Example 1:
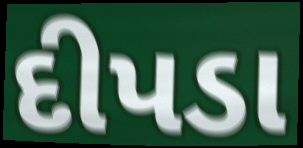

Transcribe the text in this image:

દીપડા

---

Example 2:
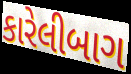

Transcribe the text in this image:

કારેલીબાગ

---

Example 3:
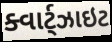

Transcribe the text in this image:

ક્વાર્ટ્ઝાઇટ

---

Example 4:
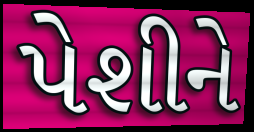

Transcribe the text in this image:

પેશીને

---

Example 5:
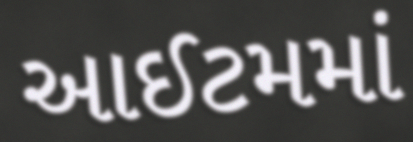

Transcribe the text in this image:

આઈટમમાં